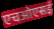
एचओएसई